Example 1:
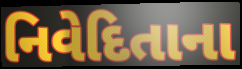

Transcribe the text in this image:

નિવેદિતાના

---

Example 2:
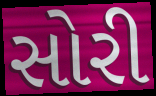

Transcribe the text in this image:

સોરી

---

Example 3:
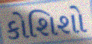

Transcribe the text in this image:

કોશિશો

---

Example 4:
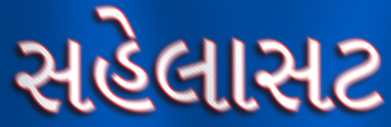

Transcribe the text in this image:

સહેલાસટ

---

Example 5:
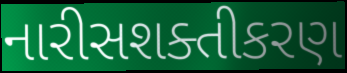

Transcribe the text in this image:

નારીસશક્તીકરણ